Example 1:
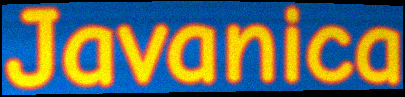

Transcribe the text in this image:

Javanica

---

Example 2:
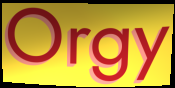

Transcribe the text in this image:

Orgy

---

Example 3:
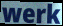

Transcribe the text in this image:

werk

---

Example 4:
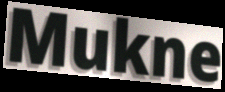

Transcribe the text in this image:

Mukne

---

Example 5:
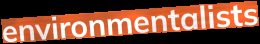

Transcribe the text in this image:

environmentalists